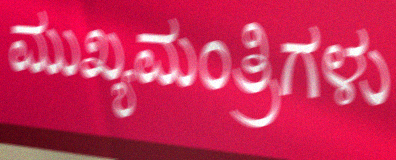
ಮುಖ್ಯಮಂತ್ರಿಗಳು